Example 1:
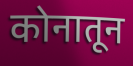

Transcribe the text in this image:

कोनातून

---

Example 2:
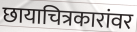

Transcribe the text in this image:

छायाचित्रकारांवर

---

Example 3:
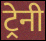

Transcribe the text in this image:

ट्रेनी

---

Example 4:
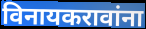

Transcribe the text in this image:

विनायकरावांना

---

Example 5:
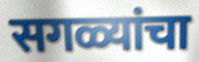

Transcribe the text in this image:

सगळ्यांचा